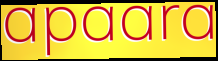
apaara